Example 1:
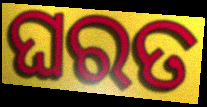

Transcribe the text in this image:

ଘରତ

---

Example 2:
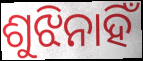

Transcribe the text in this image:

ଶୁଝିନାହିଁ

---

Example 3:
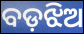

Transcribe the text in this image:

ବଡ଼ଝିଅ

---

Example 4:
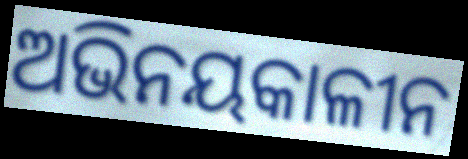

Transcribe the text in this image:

ଅଭିନୟକାଳୀନ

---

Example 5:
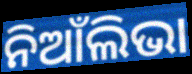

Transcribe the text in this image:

ନିଆଁଲିଭା